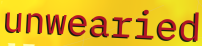
unwearied